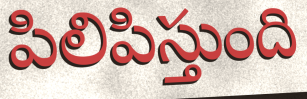
పిలిపిస్తుంది